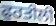
ਫੁਰਤੀਲੀ